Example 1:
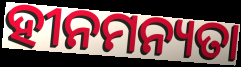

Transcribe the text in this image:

ହୀନମନ୍ୟତା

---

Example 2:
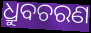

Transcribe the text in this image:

ଧ୍ରୁବଚରଣ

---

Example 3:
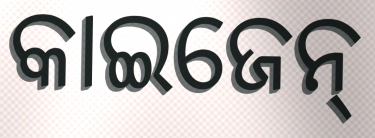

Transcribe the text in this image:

କାଇଜେନ୍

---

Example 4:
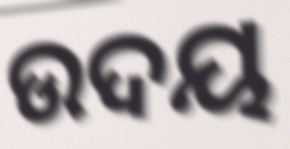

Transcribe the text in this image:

ଉଦୟ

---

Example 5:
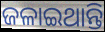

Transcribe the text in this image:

ଜଳାଇଥାନ୍ତି